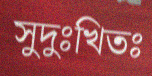
সুদুঃখিতঃ